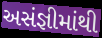
અસંજ્ઞીમાંથી